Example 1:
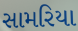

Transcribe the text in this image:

સામરિયા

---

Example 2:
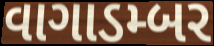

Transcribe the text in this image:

વાગાડમ્બર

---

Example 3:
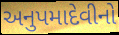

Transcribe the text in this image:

અનુપમાદેવીનો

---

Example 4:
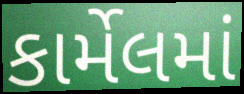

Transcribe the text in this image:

કાર્મેલમાં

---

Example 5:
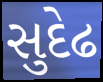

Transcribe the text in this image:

સુદેઢ